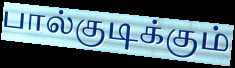
பால்குடிக்கும்